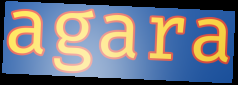
agara